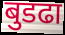
बुडढा